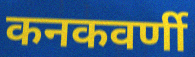
कनकवर्णी